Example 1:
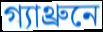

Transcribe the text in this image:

গ্যাথ্রুনে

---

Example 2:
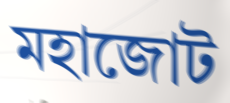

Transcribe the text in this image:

মহাজোট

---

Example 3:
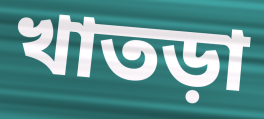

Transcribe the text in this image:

খাতড়া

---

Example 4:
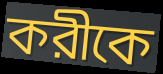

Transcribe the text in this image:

করীকে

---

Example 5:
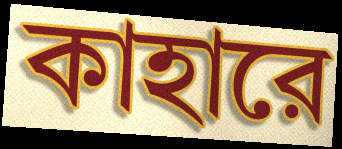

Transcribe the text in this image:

কাহারে